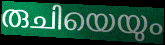
രുചിയെയും